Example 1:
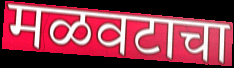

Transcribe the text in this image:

मळवटाचा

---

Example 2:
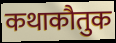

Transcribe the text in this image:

कथाकौतुक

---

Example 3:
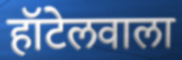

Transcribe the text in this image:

हॉटेलवाला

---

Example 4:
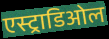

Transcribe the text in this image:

एस्ट्राडिओल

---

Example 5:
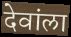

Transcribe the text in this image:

देवांला